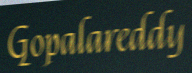
Gopalareddy